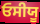
ਓਸੀਯੂ